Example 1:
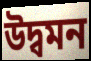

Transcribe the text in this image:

উদ্বমন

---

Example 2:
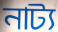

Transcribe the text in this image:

নাট্য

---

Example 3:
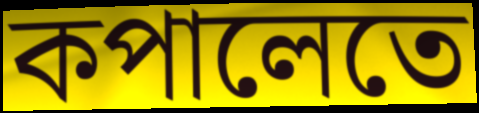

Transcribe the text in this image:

কপালেতে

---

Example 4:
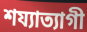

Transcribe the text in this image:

শয্যাত্যাগী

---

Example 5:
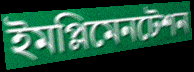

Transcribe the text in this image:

ইমপ্লিমেনটেশন